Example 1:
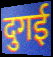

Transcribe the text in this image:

दुगई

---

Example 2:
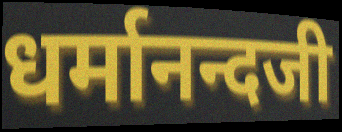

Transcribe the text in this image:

धर्मानन्दजी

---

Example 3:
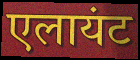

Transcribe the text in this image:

एलायंट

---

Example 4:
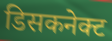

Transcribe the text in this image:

डिसकनेक्ट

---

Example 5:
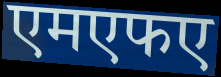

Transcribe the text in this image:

एमएफए